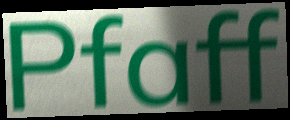
Pfaff